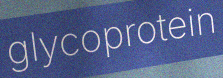
glycoprotein